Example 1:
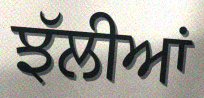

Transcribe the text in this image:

ਝੱਲੀਆਂ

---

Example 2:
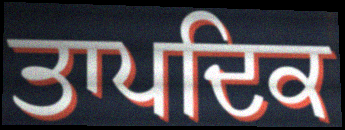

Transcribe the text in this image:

ਤਾਪਦਿਕ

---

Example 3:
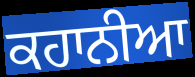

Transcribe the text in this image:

ਕਹਾਨੀਆ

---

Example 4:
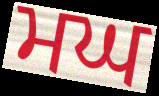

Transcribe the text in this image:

ਮਘ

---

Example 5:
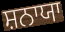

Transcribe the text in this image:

ਸ਼ਨਾਯਾ